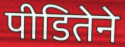
पीडितेने